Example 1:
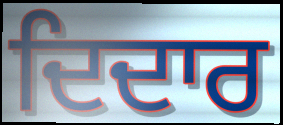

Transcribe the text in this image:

ਦਿਦਾਰ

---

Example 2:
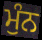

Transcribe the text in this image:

ਮੁੰਨ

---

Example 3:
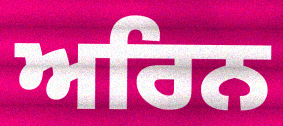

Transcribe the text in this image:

ਅਰਿਨ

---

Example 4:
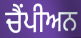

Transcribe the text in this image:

ਚੈਂਪੀਅਨ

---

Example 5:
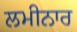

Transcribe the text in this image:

ਲਮੀਨਾਰ